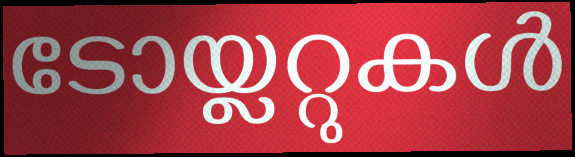
ടോയ്ലറ്റുകൾ